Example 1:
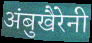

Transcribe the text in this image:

अंबुखैरेनी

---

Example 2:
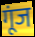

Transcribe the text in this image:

गूंज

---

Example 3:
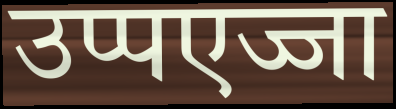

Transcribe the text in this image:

उप्पएज्जा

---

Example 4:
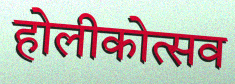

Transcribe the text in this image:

होलीकोत्सव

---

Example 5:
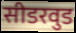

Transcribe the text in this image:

सीडरवुड